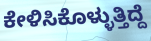
ಕೇಳಿಸಿಕೊಳ್ಳುತ್ತಿದ್ದೆ